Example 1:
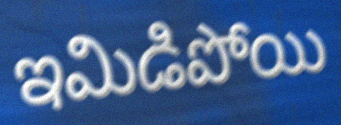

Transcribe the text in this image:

ఇమిడిపోయి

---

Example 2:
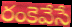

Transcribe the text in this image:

రంకెవేసే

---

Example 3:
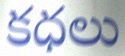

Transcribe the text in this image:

కధలు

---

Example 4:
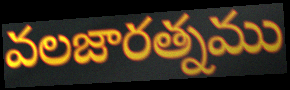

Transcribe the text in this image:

వలజారత్నము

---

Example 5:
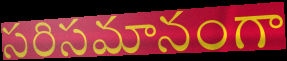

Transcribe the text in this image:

సరిసమానంగా